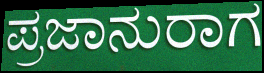
ಪ್ರಜಾನುರಾಗ